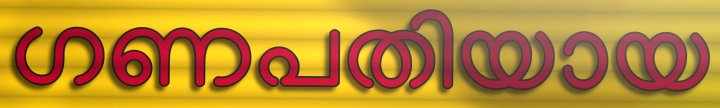
ഗണപതിയായ